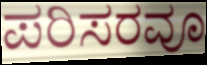
ಪರಿಸರವೂ